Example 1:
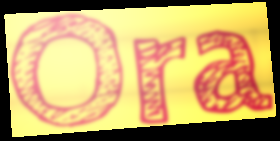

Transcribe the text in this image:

Ora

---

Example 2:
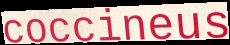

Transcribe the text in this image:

coccineus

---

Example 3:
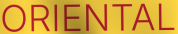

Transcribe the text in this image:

ORIENTAL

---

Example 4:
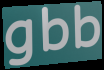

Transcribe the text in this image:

gbb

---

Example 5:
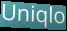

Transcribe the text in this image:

Uniqlo